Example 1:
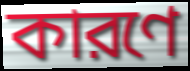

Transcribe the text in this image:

কারণে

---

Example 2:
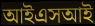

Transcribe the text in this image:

আইএসআই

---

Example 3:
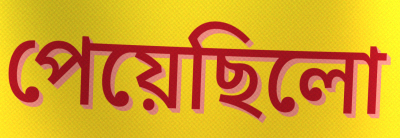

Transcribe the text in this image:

পেয়েছিলো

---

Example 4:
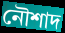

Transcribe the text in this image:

নৌশাদ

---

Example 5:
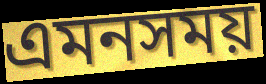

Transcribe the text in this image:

এমনসময়